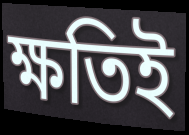
ক্ষতিই